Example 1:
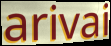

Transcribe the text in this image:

arivai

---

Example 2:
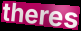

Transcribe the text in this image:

theres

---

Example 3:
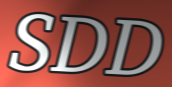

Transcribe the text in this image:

SDD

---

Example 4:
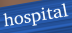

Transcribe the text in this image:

hospital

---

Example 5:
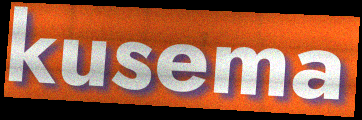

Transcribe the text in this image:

kusema